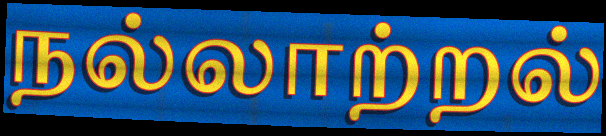
நல்லாற்றல்